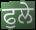
ਫੁਲੇ